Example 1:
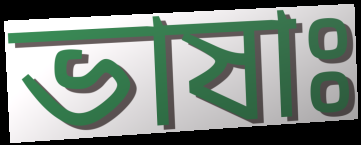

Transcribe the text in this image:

ভাষাঃ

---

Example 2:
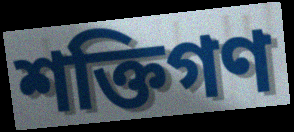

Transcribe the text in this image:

শক্তিগণ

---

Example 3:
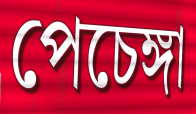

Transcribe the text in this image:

পেচেঙ্গা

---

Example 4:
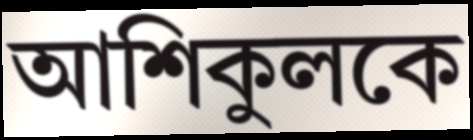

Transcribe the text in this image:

আশিকুলকে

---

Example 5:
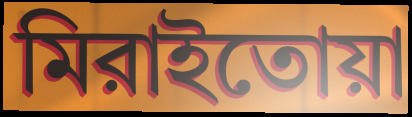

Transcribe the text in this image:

মিরাইতোয়া